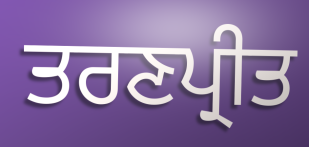
ਤਰਣਪ੍ਰੀਤ